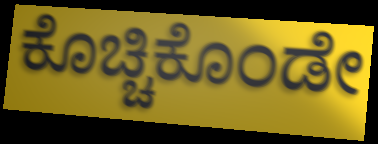
ಕೊಚ್ಚಿಕೊಂಡೇ